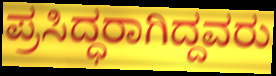
ಪ್ರಸಿದ್ಧರಾಗಿದ್ದವರು